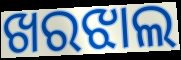
ଖରଝାଲ